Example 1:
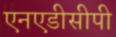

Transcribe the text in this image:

एनएडीसीपी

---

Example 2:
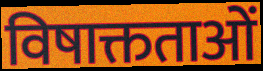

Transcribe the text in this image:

विषाक्तताओं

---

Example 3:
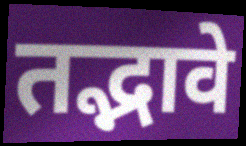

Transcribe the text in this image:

तद्भावे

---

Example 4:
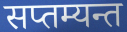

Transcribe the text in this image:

सप्तम्यन्त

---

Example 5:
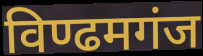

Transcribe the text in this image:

विण्ढमगंज